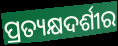
ପ୍ରତ୍ୟକ୍ଷଦର୍ଶୀର